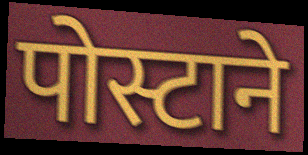
पोस्टाने